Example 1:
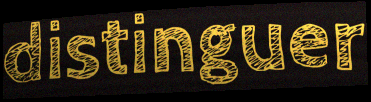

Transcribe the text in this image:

distinguer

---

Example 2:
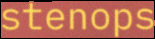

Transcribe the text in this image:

stenops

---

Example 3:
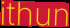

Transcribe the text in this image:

ithun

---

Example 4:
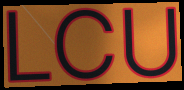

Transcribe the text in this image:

LCU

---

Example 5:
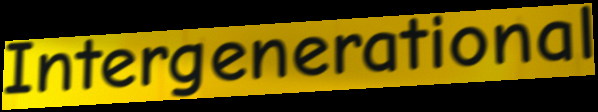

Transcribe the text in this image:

Intergenerational